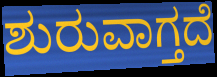
ಶುರುವಾಗ್ತದೆ